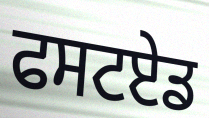
ਫਸਟਏਡ